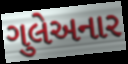
ગુલેઅનાર